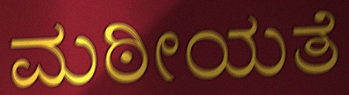
ಮಠೀಯತೆ